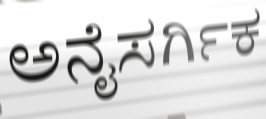
ಅನೈಸರ್ಗಿಕ